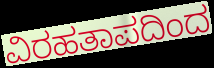
ವಿರಹತಾಪದಿಂದ